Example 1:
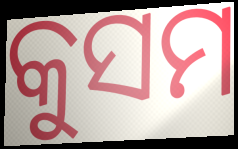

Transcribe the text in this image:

କୁସମ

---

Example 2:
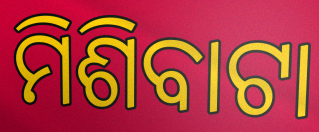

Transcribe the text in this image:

ମିଶିବାଟା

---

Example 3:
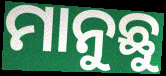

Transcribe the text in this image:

ମାନୁଛୁ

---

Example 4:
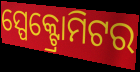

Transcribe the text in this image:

ସ୍ପେକ୍ଟ୍ରୋମିଟର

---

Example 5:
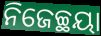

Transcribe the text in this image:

ନିଜେଚ୍ଛୟା